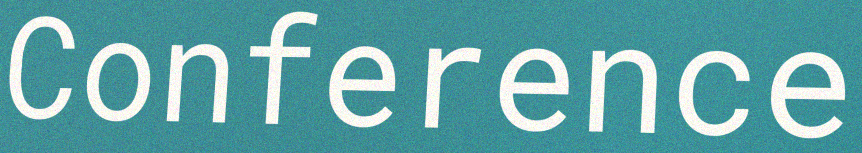
Conference